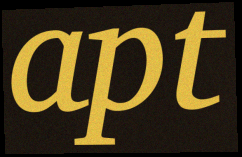
apt